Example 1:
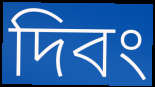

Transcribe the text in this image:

দিবং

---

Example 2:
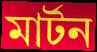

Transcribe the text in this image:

মার্টন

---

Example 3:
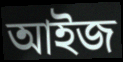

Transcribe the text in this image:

আইজ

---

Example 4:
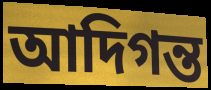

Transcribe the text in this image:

আদিগন্ত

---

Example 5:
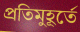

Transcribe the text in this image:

প্রতিমুহূর্তে